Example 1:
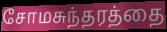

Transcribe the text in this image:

சோமசுந்தரத்தை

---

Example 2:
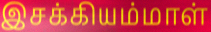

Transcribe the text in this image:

இசக்கியம்மாள்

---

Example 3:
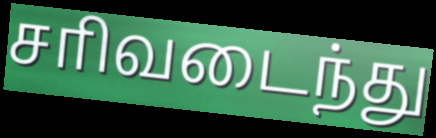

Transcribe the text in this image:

சரிவடைந்து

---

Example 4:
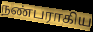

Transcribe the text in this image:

நண்பராகிய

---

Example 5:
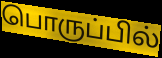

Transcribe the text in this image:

பொருப்பில்